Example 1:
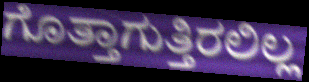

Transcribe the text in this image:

ಗೊತ್ತಾಗುತ್ತಿರಲಿಲ್ಲ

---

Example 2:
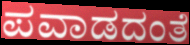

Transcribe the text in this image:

ಪವಾಡದಂತೆ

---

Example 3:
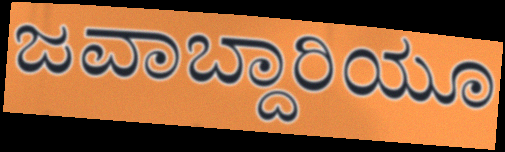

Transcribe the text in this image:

ಜವಾಬ್ದಾರಿಯೂ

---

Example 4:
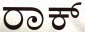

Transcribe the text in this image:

ರಾಕ್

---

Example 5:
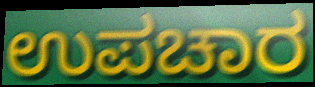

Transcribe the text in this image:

ಉಪಚಾರ